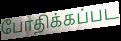
போதிக்கப்பட